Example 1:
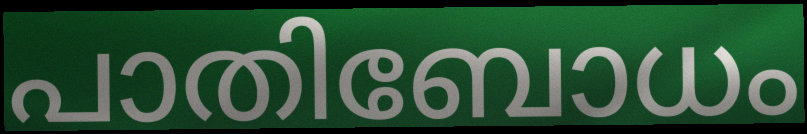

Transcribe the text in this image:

പാതിബോധം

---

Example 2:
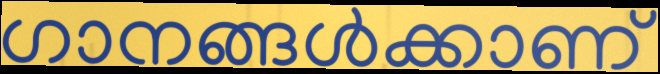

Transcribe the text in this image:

ഗാനങ്ങൾക്കാണ്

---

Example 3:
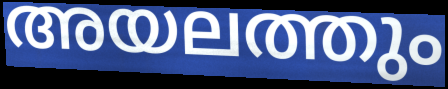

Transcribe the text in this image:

അയലത്തും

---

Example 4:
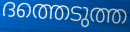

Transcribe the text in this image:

ദത്തെടുത്ത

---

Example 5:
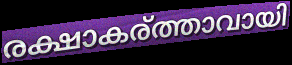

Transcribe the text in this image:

രക്ഷാകര്ത്താവായി